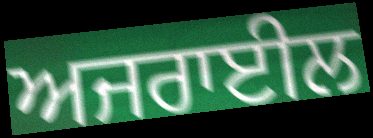
ਅਜਰਾਈਲ